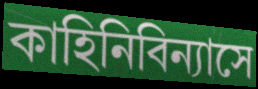
কাহিনিবিন্যাসে